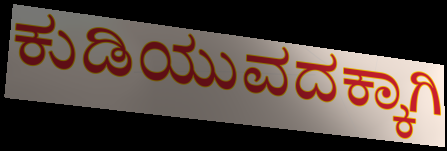
ಕುಡಿಯುವದಕ್ಕಾಗಿ